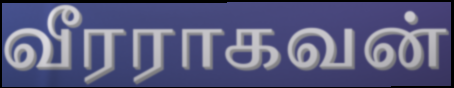
வீரராகவன்